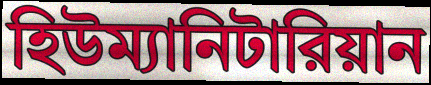
হিউম্যানিটারিয়ান